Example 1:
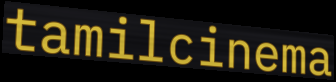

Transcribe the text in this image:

tamilcinema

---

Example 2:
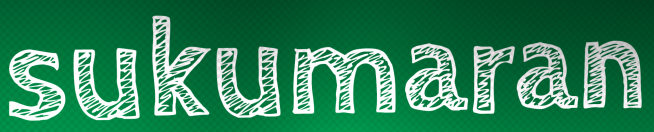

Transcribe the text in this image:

sukumaran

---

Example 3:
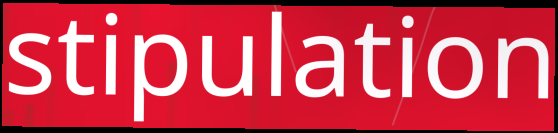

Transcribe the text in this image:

stipulation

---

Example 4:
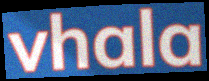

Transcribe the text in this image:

vhala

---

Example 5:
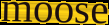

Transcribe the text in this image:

moose